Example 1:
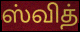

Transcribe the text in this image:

ஸ்வித்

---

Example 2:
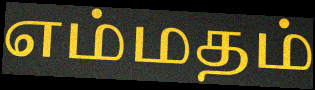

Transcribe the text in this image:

எம்மதம்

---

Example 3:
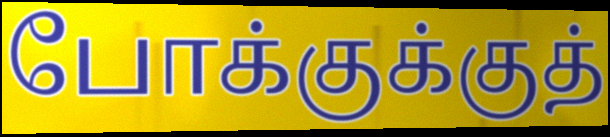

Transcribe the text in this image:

போக்குக்குத்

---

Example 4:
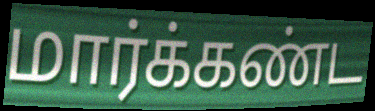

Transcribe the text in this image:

மார்க்கண்ட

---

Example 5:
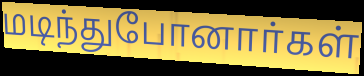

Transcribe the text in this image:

மடிந்துபோனார்கள்